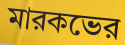
মারকভের